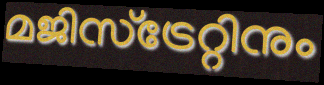
മജിസ്ട്രേറ്റിനും